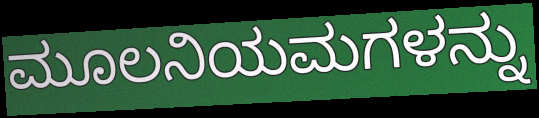
ಮೂಲನಿಯಮಗಳನ್ನು